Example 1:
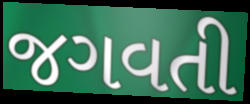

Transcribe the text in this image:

જગવતી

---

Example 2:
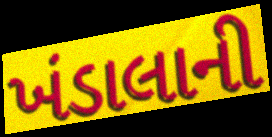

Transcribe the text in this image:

ખંડાલાની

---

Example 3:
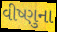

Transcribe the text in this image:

વીષ્ણુના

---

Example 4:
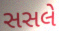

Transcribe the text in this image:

સસલે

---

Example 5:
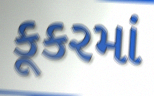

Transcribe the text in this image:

કૂકરમાં